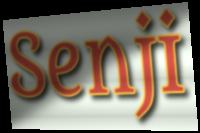
Senji